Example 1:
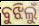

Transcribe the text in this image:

ବୁଝିଲୁଁ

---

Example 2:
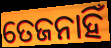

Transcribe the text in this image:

ତେଜନାହିଁ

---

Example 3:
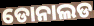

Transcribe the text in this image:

ଡୋନାଲଡ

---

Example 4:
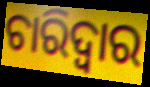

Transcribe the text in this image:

ଚାରିଦ୍ୱାର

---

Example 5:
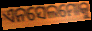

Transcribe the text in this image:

ଏନସେଲମୋକୁ